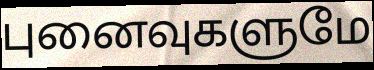
புனைவுகளுமே